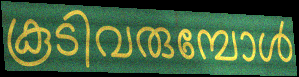
കൂടിവരുമ്പോൾ